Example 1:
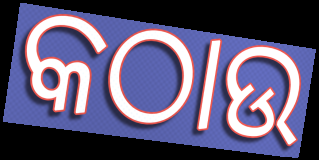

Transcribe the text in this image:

କଠାଉ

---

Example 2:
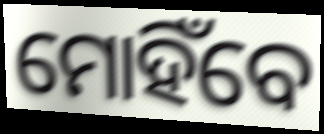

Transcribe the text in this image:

ମୋହିଁବେ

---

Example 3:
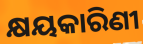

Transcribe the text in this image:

କ୍ଷୟକାରିଣୀ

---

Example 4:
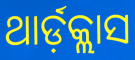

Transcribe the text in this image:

ଥାର୍ଡ଼କ୍ଲାସ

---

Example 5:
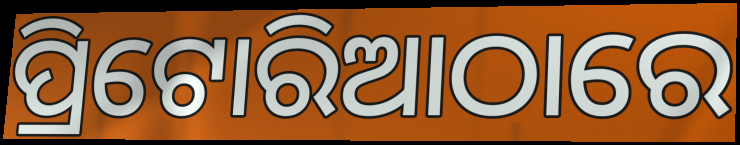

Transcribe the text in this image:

ପ୍ରିଟୋରିଆଠାରେ